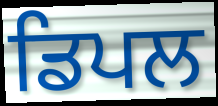
ਡਿਪਲ